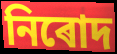
নিৰোদ